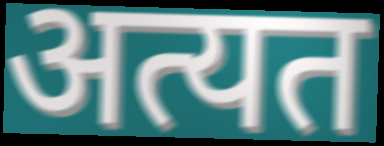
अत्यत